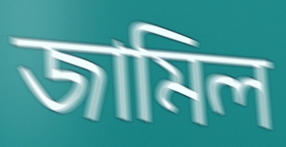
জামিল